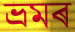
ভ্ৰমৰ